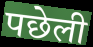
पछेली